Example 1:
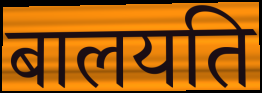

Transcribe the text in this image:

बालयति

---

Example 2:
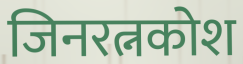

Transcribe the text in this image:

जिनरत्नकोश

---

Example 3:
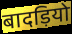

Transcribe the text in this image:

बादड़ियो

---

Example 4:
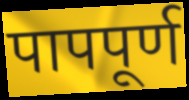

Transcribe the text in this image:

पापपूर्ण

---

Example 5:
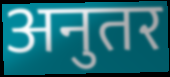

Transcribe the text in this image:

अनुतर